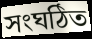
সংঘঠিত